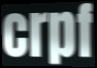
crpf